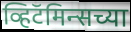
व्हिटॅमिन्सच्या